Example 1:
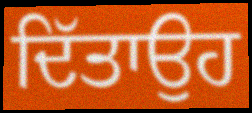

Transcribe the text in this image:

ਦਿੱਤਾਉਹ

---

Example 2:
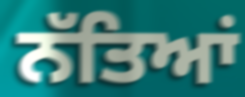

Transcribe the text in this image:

ਨੱਤਿਆਂ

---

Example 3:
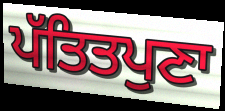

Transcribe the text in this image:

ਪੱਤਿਤਪੁਣਾ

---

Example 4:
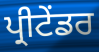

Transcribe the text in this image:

ਪ੍ਰੀਟੇਂਡਰ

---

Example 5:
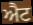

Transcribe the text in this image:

ਐਟ